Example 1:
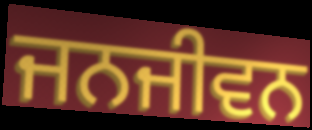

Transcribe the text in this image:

ਜਨਜੀਵਨ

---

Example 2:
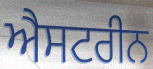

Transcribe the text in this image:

ਐਸਟਰੀਨ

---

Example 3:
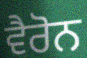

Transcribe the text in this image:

ਵੈਰੋਨ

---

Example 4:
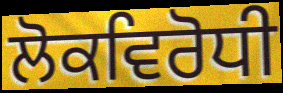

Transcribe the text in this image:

ਲੋਕਵਿਰੋਧੀ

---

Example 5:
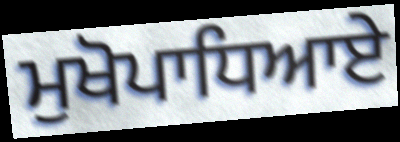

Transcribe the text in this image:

ਮੁਖੋਪਾਧਿਆਏ